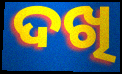
ଦଖି